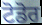
ਟੋਡੋਰ